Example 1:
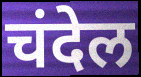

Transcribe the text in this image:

चंदेल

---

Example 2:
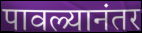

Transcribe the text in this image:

पावल्यानंतर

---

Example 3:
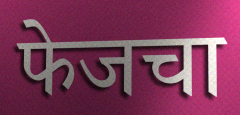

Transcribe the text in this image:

फेजचा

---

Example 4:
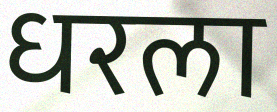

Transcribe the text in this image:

धरला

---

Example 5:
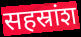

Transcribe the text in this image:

सहस्रांश